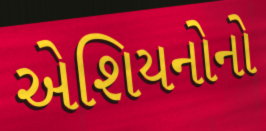
એશિયનોનો